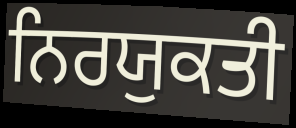
ਨਿਰਯੁਕਤੀ